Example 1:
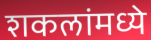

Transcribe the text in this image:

शकलांमध्ये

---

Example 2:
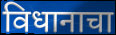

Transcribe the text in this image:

विधानाचा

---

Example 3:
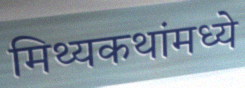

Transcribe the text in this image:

मिथ्यकथांमध्ये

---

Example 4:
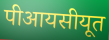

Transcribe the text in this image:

पीआयसीयूत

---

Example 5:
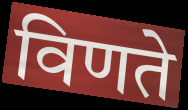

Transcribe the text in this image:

विणते